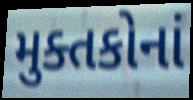
મુક્તકોનાં